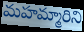
మహమ్మారిని